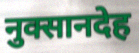
नुक्सानदेह